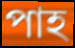
পাহ